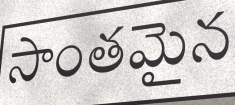
సాంతమైన